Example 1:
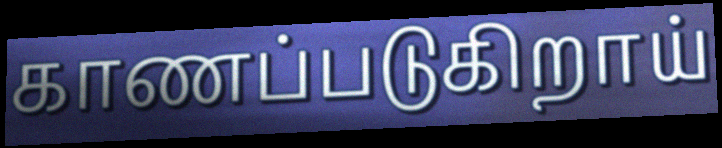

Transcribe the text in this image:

காணப்படுகிறாய்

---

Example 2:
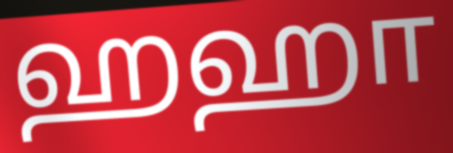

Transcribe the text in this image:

ஹஹா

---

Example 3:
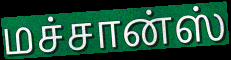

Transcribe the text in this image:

மச்சான்ஸ்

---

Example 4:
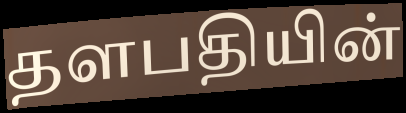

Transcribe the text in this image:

தளபதியின்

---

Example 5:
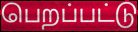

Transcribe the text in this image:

பெறப்பட்டு